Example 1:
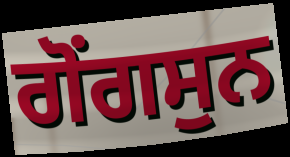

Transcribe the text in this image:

ਗੋਂਗਸੁਨ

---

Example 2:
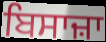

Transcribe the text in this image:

ਬਿਸਾਜ਼ਾ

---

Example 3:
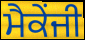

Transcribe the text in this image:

ਮੈਕੇਂਜੀ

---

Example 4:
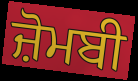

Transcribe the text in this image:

ਜ਼ੋਮਬੀ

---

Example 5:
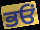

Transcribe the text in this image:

ਭਓਂ